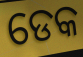
ଡେକ